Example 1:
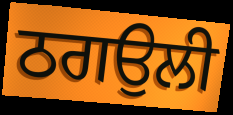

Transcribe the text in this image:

ਠਗਉਲੀ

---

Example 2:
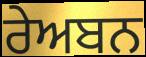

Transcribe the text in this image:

ਰੇਅਬਨ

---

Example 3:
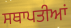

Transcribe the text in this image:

ਸਥਾਪਤੀਆਂ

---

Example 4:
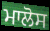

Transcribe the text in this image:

ਮਾਲੋਸ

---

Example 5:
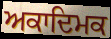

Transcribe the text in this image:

ਅਕਾਦਿਮਕ